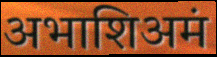
अभाशिअमं